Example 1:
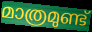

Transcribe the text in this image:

മാത്രമുണ്ട്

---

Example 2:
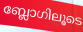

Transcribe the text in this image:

ബ്ലോഗിലൂടെ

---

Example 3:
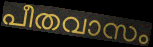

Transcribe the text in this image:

പീതവാസം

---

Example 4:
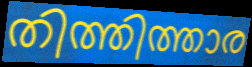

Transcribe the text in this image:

തിത്തിത്താര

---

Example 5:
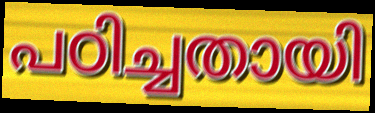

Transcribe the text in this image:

പഠിച്ചതായി